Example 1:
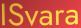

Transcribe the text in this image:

ISvara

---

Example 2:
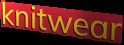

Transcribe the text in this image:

knitwear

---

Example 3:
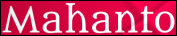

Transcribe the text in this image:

Mahanto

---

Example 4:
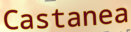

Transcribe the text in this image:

Castanea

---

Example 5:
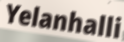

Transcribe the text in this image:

Yelanhalli